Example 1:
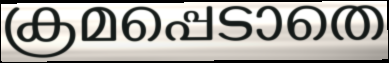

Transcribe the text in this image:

ക്രമപ്പെടാതെ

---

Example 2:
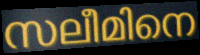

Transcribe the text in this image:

സലീമിനെ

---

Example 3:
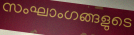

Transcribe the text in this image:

സംഘാംഗങ്ങളുടെ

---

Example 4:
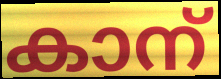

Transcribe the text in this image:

കാന്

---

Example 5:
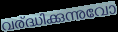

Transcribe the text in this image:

വര്ദ്ധിക്കുന്നുവോ